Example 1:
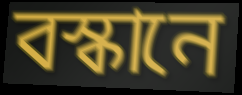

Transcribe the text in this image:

বস্কানে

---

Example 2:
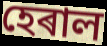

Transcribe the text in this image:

হেৰাল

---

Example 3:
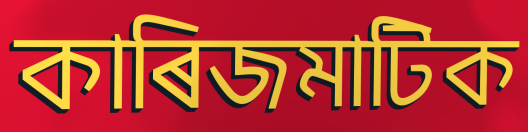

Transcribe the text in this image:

কাৰিজমাটিক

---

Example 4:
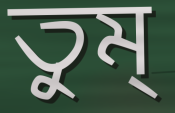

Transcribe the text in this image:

তুম্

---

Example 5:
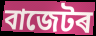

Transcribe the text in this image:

বাজেটৰ